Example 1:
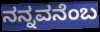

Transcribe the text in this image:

ನನ್ನವನೆಂಬ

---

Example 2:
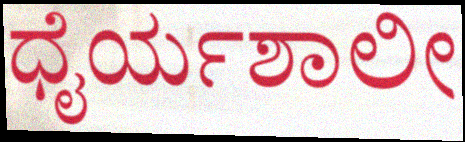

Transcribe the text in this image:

ಧೈರ್ಯಶಾಲೀ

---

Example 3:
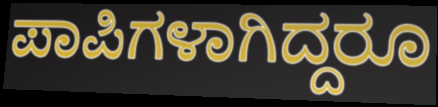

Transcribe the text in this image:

ಪಾಪಿಗಳಾಗಿದ್ದರೂ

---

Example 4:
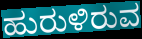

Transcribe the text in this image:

ಹುರುಳಿರುವ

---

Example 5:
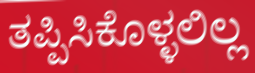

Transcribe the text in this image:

ತಪ್ಪಿಸಿಕೊಳ್ಳಲಿಲ್ಲ